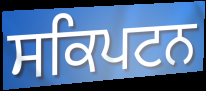
ਸਕਿਪਟਨ